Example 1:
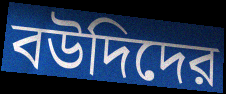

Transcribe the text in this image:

বউদিদের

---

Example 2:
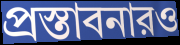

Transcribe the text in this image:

প্রস্তাবনারও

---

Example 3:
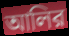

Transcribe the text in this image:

আলির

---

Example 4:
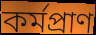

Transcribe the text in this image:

কর্মপ্রাণ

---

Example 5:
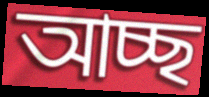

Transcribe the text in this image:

আচ্ছ